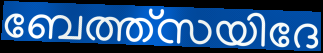
ബേത്ത്സയിദേ